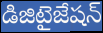
డిజిటైజేషన్